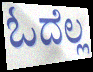
ಓದೆಲ್ಲ